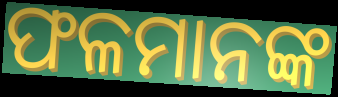
ଫଳମାନଙ୍କ